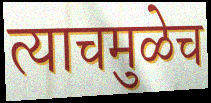
त्याचमुळेच